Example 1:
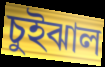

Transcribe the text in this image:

চুইঝাল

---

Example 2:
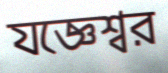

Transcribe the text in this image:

যজ্ঞেশ্বর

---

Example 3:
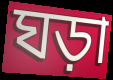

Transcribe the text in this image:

ঘড়া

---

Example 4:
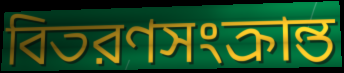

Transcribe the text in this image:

বিতরণসংক্রান্ত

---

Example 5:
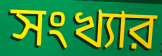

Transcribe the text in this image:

সংখ্যার